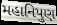
મહાનિપુણ